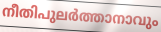
നീതിപുലർത്താനാവും